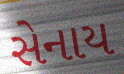
સેનાય